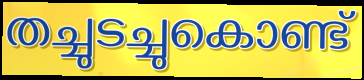
തച്ചുടച്ചുകൊണ്ട്